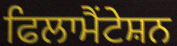
ਫਿਲਾਮੈਂਟੇਸ਼ਨ